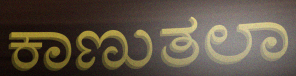
ಕಾಣುತಲಾ